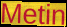
Metin